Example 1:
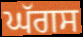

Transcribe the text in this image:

ਘੱਗਸ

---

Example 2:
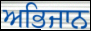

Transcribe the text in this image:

ਅਭਿਜਾਨ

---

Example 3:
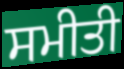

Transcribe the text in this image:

ਸਮੀਤੀ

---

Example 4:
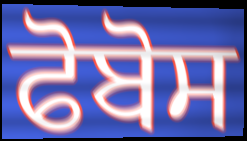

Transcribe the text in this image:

ਫੋਬੋਸ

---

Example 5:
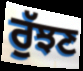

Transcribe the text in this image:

ਰੁੱਝਣ